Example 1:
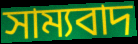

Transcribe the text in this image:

সাম্যবাদ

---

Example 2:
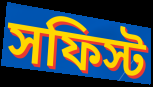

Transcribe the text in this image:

সফিস্ট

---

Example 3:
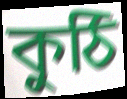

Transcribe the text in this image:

কুঠি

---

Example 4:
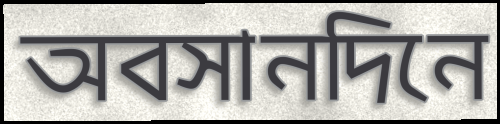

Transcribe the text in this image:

অবসানদিনে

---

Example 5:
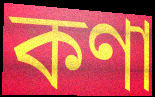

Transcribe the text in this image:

কণা